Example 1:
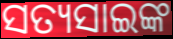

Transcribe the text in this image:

ସତ୍ୟସାଇଙ୍କ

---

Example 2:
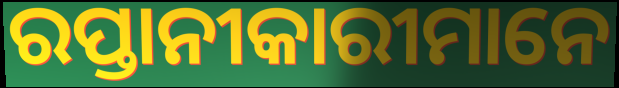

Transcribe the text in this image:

ରପ୍ତାନୀକାରୀମାନେ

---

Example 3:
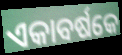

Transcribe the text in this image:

ଏକାବର୍ଷକେ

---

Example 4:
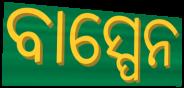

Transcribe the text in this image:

ବାସ୍ପେନ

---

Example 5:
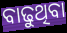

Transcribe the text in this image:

ବାଢୁଥିବା